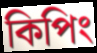
কিপিং